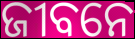
ଜୀବନେ